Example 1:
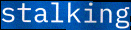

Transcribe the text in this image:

stalking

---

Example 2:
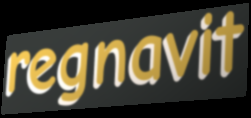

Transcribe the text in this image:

regnavit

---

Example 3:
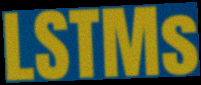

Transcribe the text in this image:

LSTMs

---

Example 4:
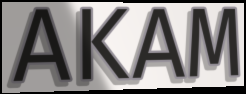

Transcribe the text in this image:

AKAM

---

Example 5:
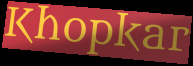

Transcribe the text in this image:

Khopkar